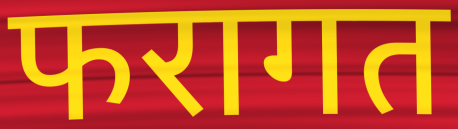
फरागत